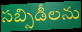
సబ్సిడీలను